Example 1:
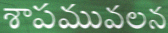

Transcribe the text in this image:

శాపమువలన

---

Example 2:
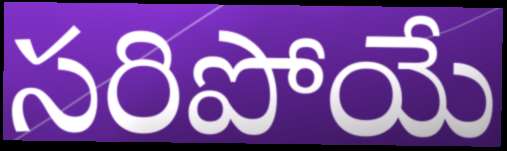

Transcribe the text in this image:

సరిపోయే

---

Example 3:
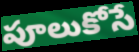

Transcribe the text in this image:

పూలుకోసే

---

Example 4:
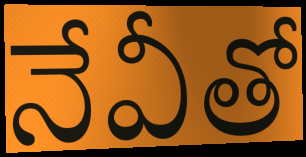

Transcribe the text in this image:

నేవీతో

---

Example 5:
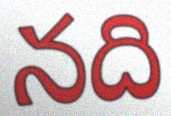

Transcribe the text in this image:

నది